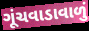
ગૂંચવાડાવાળું